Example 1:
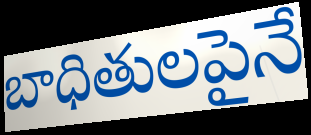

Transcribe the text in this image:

బాధితులపైనే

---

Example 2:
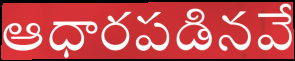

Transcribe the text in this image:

ఆధారపడినవే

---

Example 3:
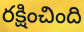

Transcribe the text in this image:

రక్షించింది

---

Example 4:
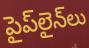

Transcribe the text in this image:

పైప్‌లైన్‌లు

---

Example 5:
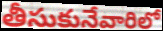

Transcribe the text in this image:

తీసుకునేవారిలో